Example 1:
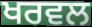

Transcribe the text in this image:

ਖਰਵਲ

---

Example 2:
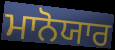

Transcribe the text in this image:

ਮਾਨੋਯਾਰ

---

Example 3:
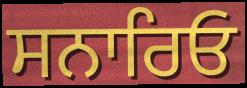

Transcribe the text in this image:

ਸਨਾਰਿਓ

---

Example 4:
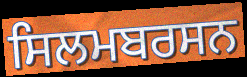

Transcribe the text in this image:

ਸਿਲਮਬਰਸਨ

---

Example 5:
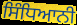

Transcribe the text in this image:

ਸਿੰਧਿਆਨੀ